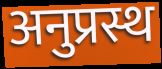
अनुप्रस्थ